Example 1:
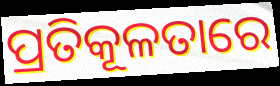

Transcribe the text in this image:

ପ୍ରତିକୂଳତାରେ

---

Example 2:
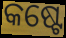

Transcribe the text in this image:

କଷ୍ଟେ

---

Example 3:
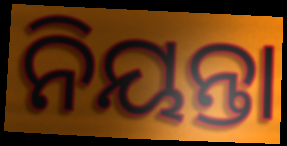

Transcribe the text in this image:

ନିୟନ୍ତା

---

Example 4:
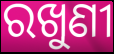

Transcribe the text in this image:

ରଖୁଣୀ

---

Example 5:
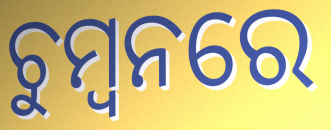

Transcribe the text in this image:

ଚୁମ୍ୱନରେ